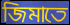
জিমাতে